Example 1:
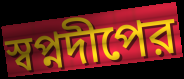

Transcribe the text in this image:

স্বপ্নদীপের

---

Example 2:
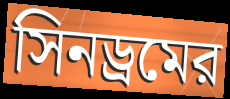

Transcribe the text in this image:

সিনড্রমের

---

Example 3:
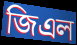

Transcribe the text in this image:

জিএল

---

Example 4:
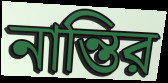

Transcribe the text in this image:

নান্তির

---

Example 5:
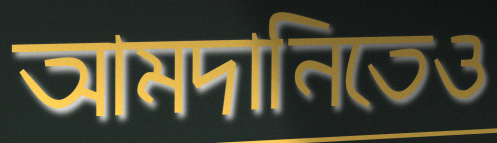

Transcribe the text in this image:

আমদানিতেও